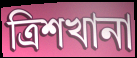
ত্রিশখানা